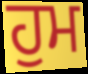
ਹੁਮ